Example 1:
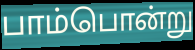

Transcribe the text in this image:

பாம்பொன்று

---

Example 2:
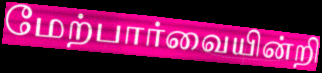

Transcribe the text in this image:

மேற்பார்வையின்றி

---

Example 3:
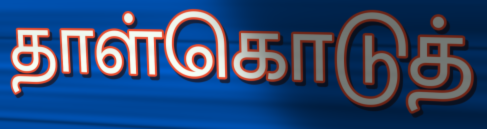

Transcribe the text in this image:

தாள்கொடுத்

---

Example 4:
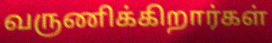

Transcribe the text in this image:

வருணிக்கிறார்கள்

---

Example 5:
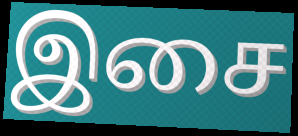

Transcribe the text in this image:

இசை